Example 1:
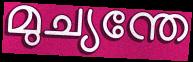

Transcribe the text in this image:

മുച്യന്തേ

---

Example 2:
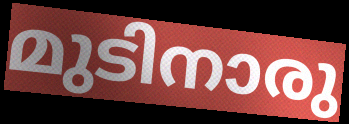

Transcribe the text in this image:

മുടിനാരു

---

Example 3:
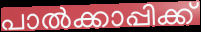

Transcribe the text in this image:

പാൽക്കാപ്പിക്ക്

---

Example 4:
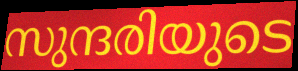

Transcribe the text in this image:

സുന്ദരിയുടെ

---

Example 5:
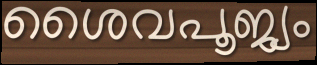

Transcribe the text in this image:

ശൈവപൂജ്യം